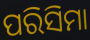
ପରିସିମା